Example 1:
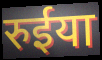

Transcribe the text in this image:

रुईया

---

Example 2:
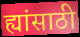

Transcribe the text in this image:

ह्यांसाठी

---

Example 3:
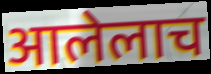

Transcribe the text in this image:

आलेलाच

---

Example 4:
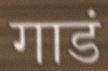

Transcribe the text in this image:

गाडं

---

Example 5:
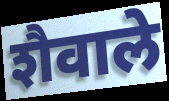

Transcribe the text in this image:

शैवाले